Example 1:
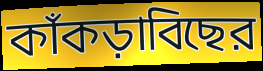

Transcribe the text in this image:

কাঁকড়াবিছের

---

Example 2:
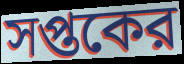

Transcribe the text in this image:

সপ্তকের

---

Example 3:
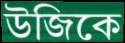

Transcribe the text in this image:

উজিকে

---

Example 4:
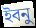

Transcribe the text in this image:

ইবনু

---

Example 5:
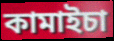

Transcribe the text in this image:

কামাইচা